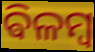
ଵିଳମ୍ବ